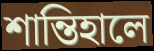
শান্তিহালে